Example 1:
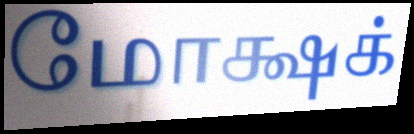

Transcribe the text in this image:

மோக்ஷக்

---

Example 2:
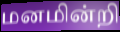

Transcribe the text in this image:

மனமின்றி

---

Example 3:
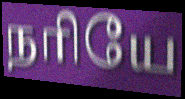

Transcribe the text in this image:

நரியே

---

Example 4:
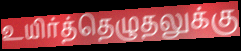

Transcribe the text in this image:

உயிர்த்தெழுதலுக்கு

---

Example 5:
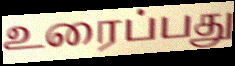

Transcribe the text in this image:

உரைப்பது